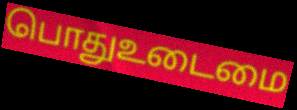
பொதுஉடைமை